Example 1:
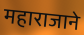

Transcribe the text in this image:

महाराजाने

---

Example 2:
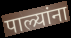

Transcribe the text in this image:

पाल्यांना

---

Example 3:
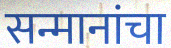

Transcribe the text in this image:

सन्मानांचा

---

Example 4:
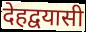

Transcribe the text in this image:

देहद्वयासी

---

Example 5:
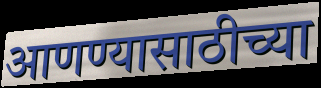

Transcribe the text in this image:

आणण्यासाठीच्या